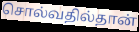
சொல்வதில்தான்